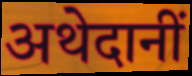
अथेदानीं